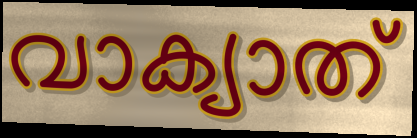
വാക്യാത്